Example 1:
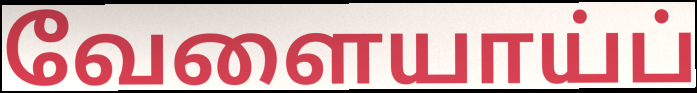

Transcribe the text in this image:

வேளையாய்ப்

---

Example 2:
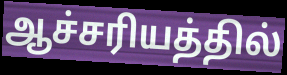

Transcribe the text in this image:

ஆச்சரியத்தில்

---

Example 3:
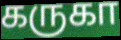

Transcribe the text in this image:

கருகா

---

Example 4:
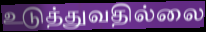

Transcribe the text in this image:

உடுத்துவதில்லை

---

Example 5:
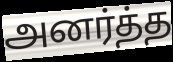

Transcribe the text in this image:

அனர்த்த